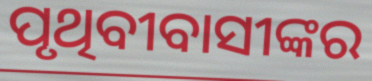
ପୃଥିବୀବାସୀଙ୍କର